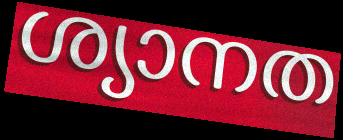
ശ്യാനത